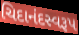
ચિદાનંદસ્વરૂપ